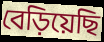
বেড়িয়েছি